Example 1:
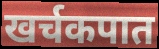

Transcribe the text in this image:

खर्चकपात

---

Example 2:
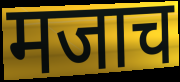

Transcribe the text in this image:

मजाच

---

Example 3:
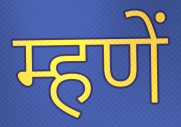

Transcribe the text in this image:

म्हणें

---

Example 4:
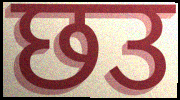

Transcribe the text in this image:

छउ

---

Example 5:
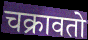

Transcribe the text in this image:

चक्रावतो